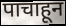
पाचाहून